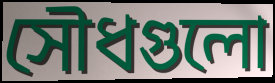
সৌধগুলো